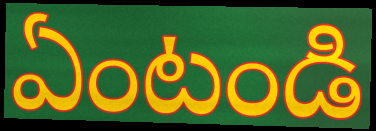
ఏంటండి